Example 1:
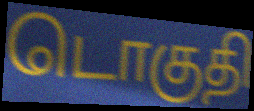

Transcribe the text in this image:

டொகுதி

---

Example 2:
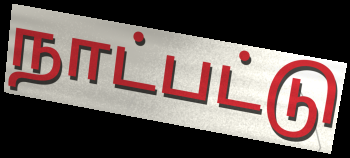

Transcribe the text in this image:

நாட்பட்டு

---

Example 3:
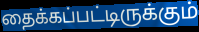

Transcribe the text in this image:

தைக்கப்பட்டிருக்கும்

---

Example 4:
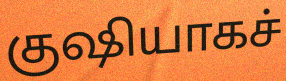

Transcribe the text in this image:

குஷியாகச்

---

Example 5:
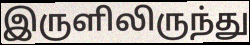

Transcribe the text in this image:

இருளிலிருந்து